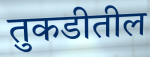
तुकडीतील